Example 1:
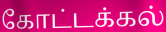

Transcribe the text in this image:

கோட்டக்கல்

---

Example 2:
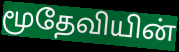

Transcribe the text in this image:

மூதேவியின்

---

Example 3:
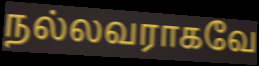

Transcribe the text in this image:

நல்லவராகவே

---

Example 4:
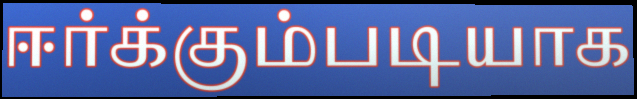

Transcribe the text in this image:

ஈர்க்கும்படியாக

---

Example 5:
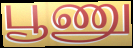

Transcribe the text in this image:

பூணு